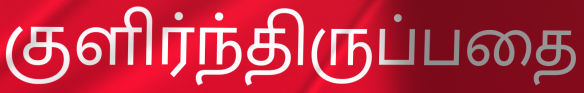
குளிர்ந்திருப்பதை